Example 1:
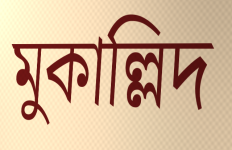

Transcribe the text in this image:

মুকাল্লিদ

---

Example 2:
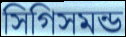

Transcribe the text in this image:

সিগিসমন্ড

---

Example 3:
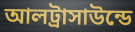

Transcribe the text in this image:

আলট্রাসাউন্ডে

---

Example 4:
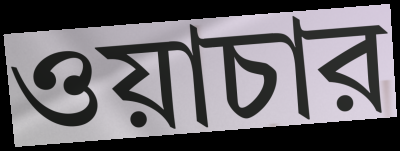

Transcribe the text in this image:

ওয়াচার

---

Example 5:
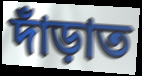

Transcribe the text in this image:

দাঁড়াত